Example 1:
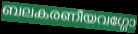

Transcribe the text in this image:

ബലകരണീയവഗ്ഗോ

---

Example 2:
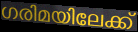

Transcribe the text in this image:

ഗരിമയിലേക്ക്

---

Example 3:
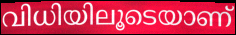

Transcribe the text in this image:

വിധിയിലൂടെയാണ്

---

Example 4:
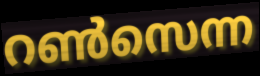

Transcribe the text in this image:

റൺസെന്ന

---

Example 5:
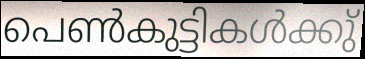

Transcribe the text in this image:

പെൺകുട്ടികൾക്കു്